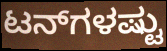
ಟನ್‌ಗಳಷ್ಟು